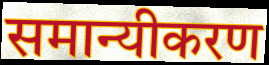
समान्यीकरण